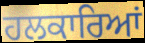
ਹਲਕਾਰਿਆਂ